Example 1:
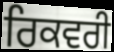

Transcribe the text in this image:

ਰਿਕਵਰੀ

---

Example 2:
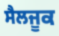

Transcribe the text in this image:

ਸੈਲਜੂਕ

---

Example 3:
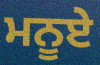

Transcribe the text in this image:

ਮਨੂਏ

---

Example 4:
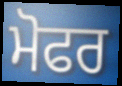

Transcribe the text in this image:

ਮੋਫਰ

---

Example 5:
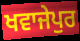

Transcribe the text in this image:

ਖਵਾਜੇਪੁਰ